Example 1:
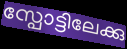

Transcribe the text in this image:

സ്പോട്ടിലേക്കു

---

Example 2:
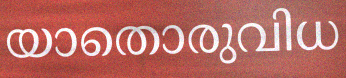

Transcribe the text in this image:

യാതൊരുവിധ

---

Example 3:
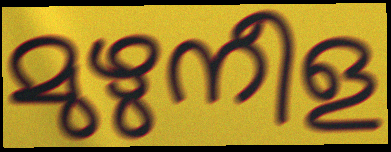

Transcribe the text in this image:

മുഴുനീള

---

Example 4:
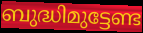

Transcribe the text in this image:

ബുദ്ധിമുട്ടേണ്ട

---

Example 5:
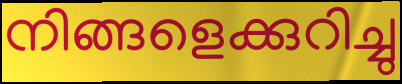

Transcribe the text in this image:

നിങ്ങളെക്കുറിച്ചു